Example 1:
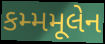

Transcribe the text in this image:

કમ્મમૂલેન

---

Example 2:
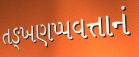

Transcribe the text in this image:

તઙ્ખણપ્પવત્તાનં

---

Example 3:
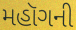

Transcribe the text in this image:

મહૉગની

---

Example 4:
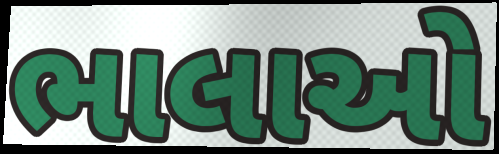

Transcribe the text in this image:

ભાલાઓ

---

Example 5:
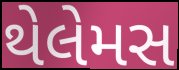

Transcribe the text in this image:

થેલેમસ